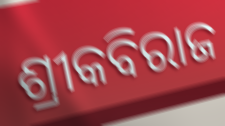
ଶ୍ରୀକବିରାଜ